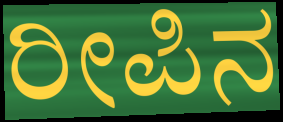
ರೀಪಿನ